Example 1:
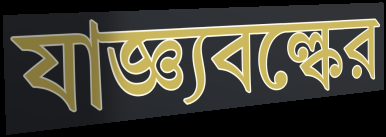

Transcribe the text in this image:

যাজ্ঞ্যবল্কের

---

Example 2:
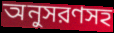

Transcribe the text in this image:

অনুসরণসহ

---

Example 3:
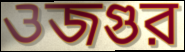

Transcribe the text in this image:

ওজগুর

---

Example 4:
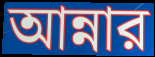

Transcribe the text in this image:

আন্নার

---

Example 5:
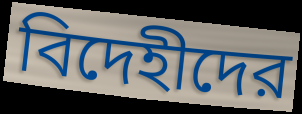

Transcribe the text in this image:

বিদেহীদের